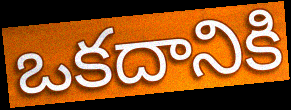
ఒకదానికి